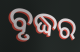
ବୃଦ୍ଧର